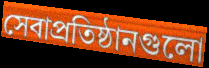
সেবাপ্রতিষ্ঠানগুলো